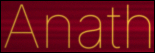
Anath